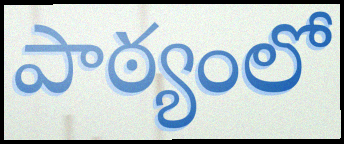
పాఠ్యంలో